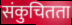
संकुचितता